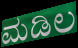
ಮಡಿಲ